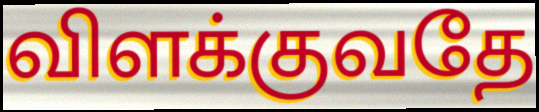
விளக்குவதே